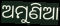
ଅମୁଣିଆ